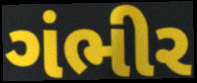
ગંભીર